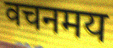
वचनमय